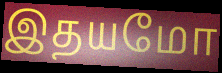
இதயமோ